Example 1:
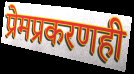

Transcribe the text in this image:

प्रेमप्रकरणही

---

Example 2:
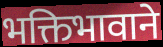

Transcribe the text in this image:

भक्तिभावाने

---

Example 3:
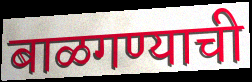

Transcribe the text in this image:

बाळगण्याची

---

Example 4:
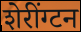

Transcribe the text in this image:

शेरींग्टन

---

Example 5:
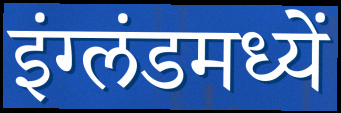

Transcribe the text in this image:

इंग्लंडमध्यें